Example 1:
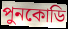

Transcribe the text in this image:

পুনকোডি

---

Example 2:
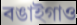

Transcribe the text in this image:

বঙাইগাও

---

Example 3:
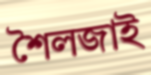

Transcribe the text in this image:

শৈলজাই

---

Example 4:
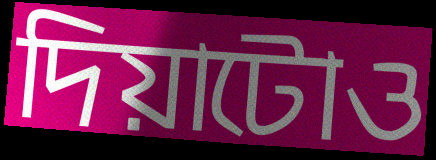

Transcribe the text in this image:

দিয়াটোও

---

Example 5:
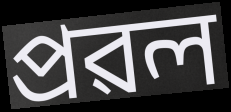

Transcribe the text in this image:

প্ৰৱল